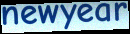
newyear